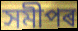
সমীপৰ